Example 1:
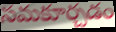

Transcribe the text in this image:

సమకూర్చడం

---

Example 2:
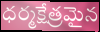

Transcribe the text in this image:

ధర్మక్షేత్రమైన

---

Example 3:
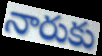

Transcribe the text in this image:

నారుకు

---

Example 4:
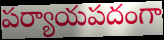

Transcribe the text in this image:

పర్యాయపదంగా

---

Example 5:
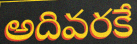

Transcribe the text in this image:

అదివరకే